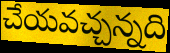
చేయవచ్చన్నది